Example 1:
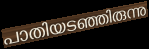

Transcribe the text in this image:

പാതിയടഞ്ഞിരുന്നു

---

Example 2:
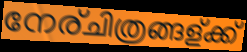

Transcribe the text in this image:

നേര്ചിത്രങ്ങള്ക്ക്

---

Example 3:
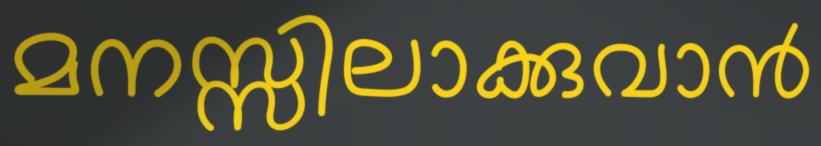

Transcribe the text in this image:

മനസ്സിലാക്കുവാൻ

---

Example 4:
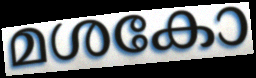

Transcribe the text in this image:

മശകോ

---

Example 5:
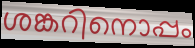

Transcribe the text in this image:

ശങ്കറിനൊപ്പം